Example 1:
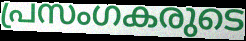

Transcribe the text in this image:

പ്രസംഗകരുടെ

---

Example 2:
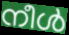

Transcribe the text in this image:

നീൾ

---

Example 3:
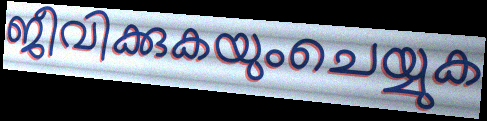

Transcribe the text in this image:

ജീവിക്കുകയുംചെയ്യുക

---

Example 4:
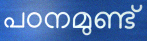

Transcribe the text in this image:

പഠനമുണ്ട്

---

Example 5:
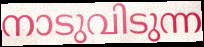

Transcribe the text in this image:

നാടുവിടുന്ന